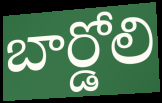
బార్డోలి